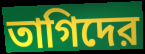
তাগিদের